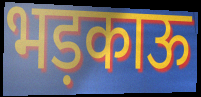
भड़काऊ